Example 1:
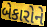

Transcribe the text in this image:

બેકારોને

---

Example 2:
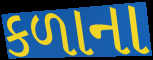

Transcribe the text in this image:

કળાના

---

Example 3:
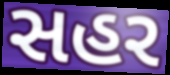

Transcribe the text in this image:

સહર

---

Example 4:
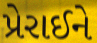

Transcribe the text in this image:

પ્રેરાઈને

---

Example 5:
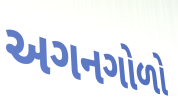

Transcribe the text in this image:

અગનગોળો